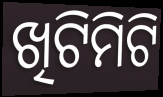
ଖିଟିମିଟି